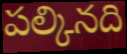
పల్కినది